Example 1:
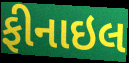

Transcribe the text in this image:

ફીનાઇલ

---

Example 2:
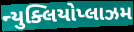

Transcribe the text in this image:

ન્યુક્લિયોપ્લાઝમ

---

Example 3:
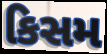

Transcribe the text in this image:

કિસમ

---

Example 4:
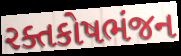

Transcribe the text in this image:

રક્તકોષભંજન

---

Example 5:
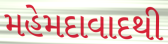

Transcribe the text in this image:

મહેમદાવાદથી